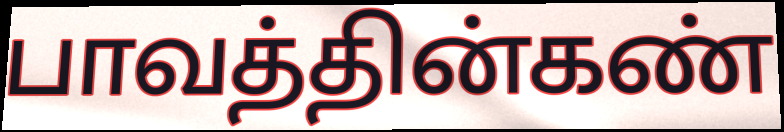
பாவத்தின்கண்